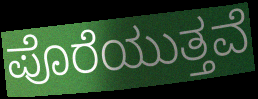
ಪೊರೆಯುತ್ತವೆ